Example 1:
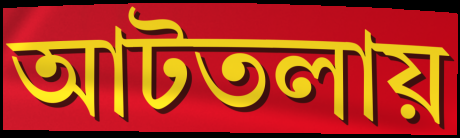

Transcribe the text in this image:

আটতলায়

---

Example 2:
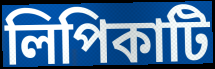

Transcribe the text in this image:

লিপিকাটি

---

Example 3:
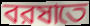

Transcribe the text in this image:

বরষাতে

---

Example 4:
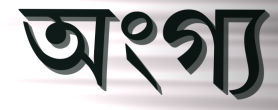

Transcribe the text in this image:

অংগ্য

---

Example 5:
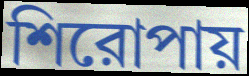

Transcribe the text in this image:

শিরোপায়